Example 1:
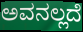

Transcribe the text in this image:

ಅವನಲ್ಲದೆ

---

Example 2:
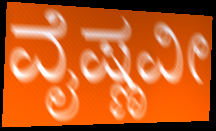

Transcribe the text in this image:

ವೈಷ್ಣವೀ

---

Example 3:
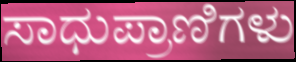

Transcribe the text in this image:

ಸಾಧುಪ್ರಾಣಿಗಳು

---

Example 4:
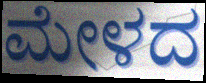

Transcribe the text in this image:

ಮೇಳದ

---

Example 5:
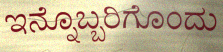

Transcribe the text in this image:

ಇನ್ನೊಬ್ಬರಿಗೊಂದು